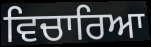
ਵਿਚਾਰਿਆ